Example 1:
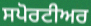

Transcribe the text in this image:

ਸਪੋਰਟੀਅਰ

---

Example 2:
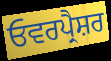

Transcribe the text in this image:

ਓਵਰਪ੍ਰੈਸ਼ਰ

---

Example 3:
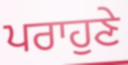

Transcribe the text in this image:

ਪਰਾਹੁਣੇ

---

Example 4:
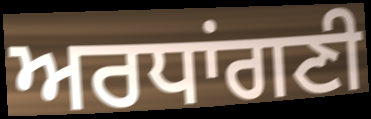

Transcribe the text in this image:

ਅਰਧਾਂਗਣੀ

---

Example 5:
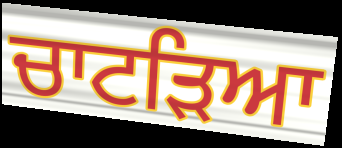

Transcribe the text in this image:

ਚਾਟੜਿਆ